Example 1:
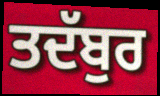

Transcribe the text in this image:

ਤਦੱਬੁਰ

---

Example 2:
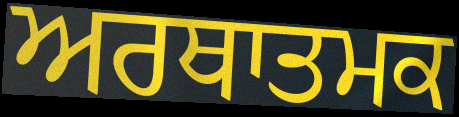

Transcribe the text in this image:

ਅਰਥਾਤਮਕ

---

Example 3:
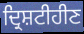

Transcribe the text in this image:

ਦ੍ਰਿਸ਼ਟੀਹੀਣ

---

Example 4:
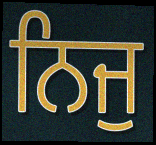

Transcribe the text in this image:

ਨਿਜੁ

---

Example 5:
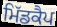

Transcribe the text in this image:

ਮਿੱਡਕੈਪ